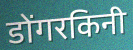
डोंगरकिनी